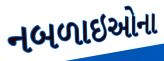
નબળાઇઓના